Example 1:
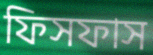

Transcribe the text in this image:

ফিসফাস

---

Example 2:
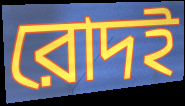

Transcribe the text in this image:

রোদই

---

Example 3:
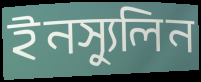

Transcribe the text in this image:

ইনস্যুলিন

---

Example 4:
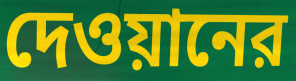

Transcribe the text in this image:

দেওয়ানের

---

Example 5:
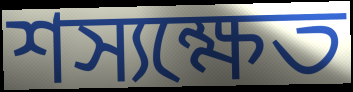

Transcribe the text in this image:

শস্যক্ষেত